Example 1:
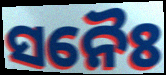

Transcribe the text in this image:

ସନୈଃ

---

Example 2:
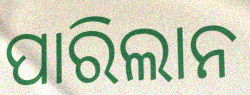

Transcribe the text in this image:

ପାରିଲାନ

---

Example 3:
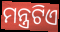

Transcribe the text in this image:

ମନ୍ତ୍ରଟିଏ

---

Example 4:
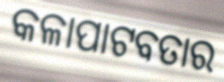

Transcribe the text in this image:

କଳାପାଟବତାର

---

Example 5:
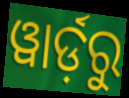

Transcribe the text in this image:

ୱାର୍ଡ଼ରୁ